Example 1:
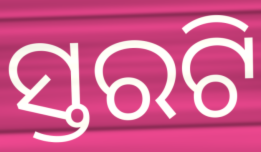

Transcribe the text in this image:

ସ୍ତରଟି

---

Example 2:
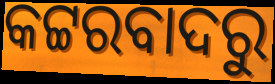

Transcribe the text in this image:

କଟ୍ଟରବାଦରୁ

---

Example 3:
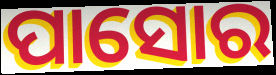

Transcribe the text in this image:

ପାସୋର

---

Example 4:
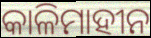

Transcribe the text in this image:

କାଳିମାହୀନ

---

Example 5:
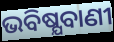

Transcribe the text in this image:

ଭବିଷ୍ଯବାଣୀ